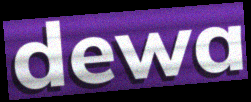
dewa